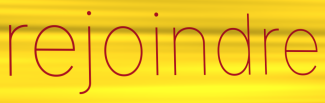
rejoindre